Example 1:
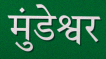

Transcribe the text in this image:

मुंडेश्वर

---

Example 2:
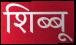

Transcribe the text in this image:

शिब्बू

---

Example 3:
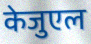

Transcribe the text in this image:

केजुएल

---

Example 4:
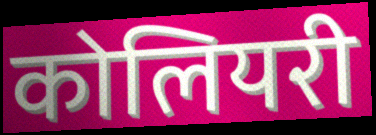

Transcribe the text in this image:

कोलियरी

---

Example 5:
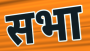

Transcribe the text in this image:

सभा